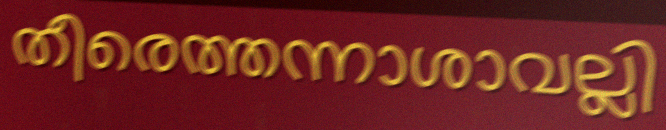
തീരെത്തന്നാശാവല്ലി